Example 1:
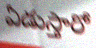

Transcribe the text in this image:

ఏడుస్తారో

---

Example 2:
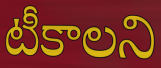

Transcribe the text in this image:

టీకాలని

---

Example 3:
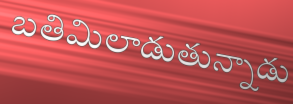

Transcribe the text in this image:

బతిమిలాడుతున్నాడు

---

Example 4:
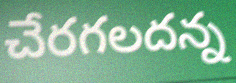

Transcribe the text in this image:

చేరగలదన్న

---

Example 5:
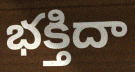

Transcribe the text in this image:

భక్తిదా